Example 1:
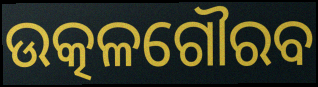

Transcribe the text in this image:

ଉତ୍କଳଗୌରବ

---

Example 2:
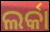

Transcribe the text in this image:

ଲର୍କା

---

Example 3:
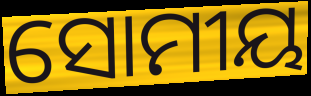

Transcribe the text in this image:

ସୋମୀୟ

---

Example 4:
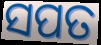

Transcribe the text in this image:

ସପତ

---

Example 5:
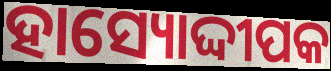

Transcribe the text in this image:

ହାସ୍ୟୋଦ୍ଦୀପକ